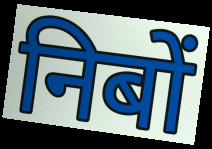
निबों